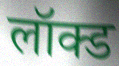
लॉक्ड